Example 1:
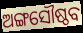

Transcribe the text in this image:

ଅଙ୍ଗସୌଷ୍ଠବ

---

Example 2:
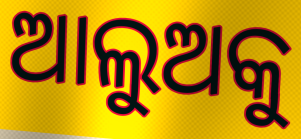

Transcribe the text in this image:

ଆଲୁଅକୁ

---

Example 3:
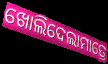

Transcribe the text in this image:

ଖୋଲିଦେଲାମାତ୍ରେ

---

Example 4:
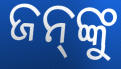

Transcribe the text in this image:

ଜନ୍‍ଙ୍କୁ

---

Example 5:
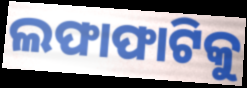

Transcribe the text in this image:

ଲଫାଫାଟିକୁ